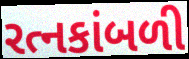
રત્નકાંબળી